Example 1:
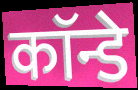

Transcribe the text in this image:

कॉन्डे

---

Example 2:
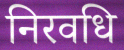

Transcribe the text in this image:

निरवधि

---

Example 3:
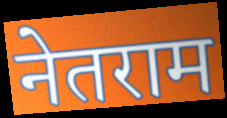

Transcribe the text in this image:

नेतराम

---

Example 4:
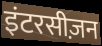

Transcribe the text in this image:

इंटरसीज़न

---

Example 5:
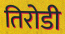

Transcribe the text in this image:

तिरोडी